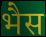
भैस